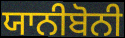
ਯਾਨੀਬੋਨੀ